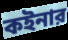
কইনার